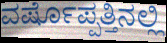
ವರ್ಷೊಪ್ಪತ್ತಿನಲ್ಲಿ